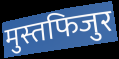
मुस्तफिजुर